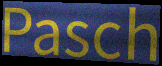
Pasch